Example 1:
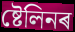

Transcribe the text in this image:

ষ্টেলিনৰ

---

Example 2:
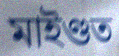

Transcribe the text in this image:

মাইণ্ডত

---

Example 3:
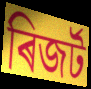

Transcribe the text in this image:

ৰিজৰ্ট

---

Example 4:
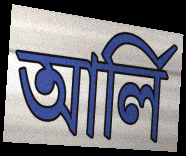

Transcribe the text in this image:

আৰ্লি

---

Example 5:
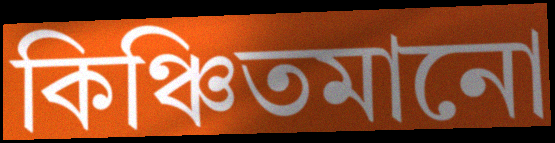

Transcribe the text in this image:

কিঞ্চিতমানো